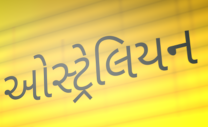
ઓસ્ટ્રેલિયન